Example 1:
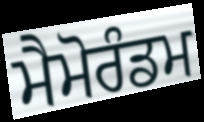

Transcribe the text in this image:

ਮੈਮੋਰੰਡਮ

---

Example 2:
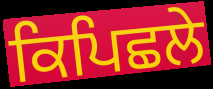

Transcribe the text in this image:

ਕਿਪਿਛਲੇ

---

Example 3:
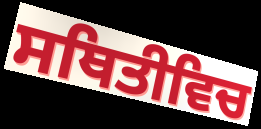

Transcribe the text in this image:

ਸਥਿਤੀਵਿਚ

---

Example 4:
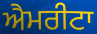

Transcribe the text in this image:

ਐਮਰੀਟਾ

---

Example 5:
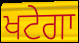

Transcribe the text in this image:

ਖਟੇਗਾ